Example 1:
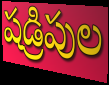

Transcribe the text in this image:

షడ్రిపుల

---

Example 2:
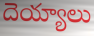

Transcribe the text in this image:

దెయ్యాలు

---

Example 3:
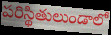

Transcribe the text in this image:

పరిస్థితులుండాలో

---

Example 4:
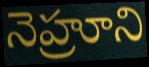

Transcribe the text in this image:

నెహ్రూని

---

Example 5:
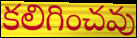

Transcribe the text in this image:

కలిగించవు